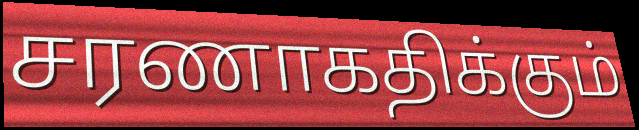
சரணாகதிக்கும்